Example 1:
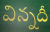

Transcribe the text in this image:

విన్నదీ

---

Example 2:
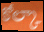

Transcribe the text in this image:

కోల్కా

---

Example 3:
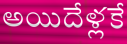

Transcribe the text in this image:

అయిదేళ్లకే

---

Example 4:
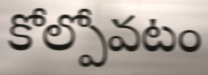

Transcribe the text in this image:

కోల్పోవటం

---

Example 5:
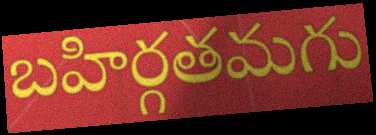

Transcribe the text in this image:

బహిర్గతమగు